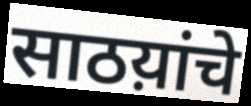
साठय़ांचे